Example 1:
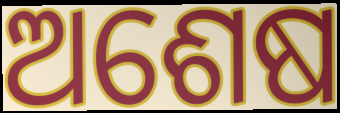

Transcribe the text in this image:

ଅଶେଷ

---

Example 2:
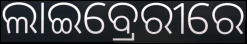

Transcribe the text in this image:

ଲାଇବ୍ରେରୀରେ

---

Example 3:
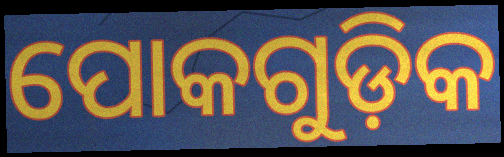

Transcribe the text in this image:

ପୋକଗୁଡ଼ିକ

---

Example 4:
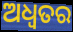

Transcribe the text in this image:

ଅଧ୍ଵତର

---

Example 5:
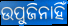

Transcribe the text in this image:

ଉପୁଜିନାହିଁ